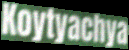
Koytyachya